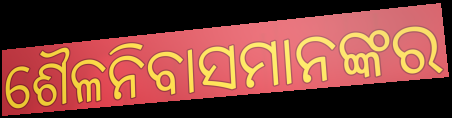
ଶୈଳନିବାସମାନଙ୍କର